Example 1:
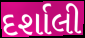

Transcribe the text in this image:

દર્શાલી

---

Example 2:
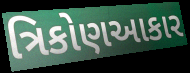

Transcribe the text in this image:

ત્રિકોણઆકાર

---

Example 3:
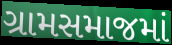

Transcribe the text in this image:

ગ્રામસમાજમાં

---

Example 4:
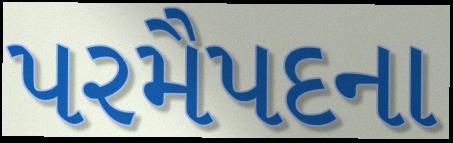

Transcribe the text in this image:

પરમૈપદના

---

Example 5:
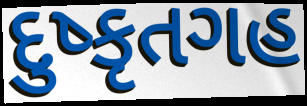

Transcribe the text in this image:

દુષ્કૃતગહ